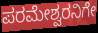
ಪರಮೇಶ್ವರನಿಗೇ